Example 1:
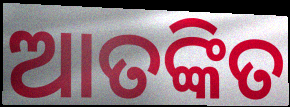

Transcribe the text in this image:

ଆତଙ୍କିତ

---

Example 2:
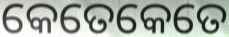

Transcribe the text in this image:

କେତେକେତେ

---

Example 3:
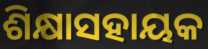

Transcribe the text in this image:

ଶିକ୍ଷାସହାୟକ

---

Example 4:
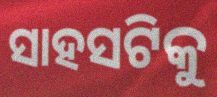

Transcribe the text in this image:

ସାହସଟିକୁ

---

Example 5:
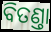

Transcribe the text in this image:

ବିତଣ୍ତା